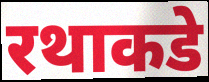
रथाकडे